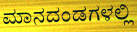
ಮಾನದಂಡಗಳಲ್ಲಿ